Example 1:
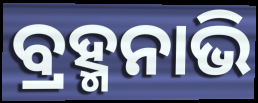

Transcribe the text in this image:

ବ୍ରହ୍ମନାଭି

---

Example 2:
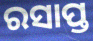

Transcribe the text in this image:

ରସାପ୍ତ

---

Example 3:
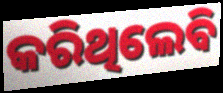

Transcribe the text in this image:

କରିଥିଲେବି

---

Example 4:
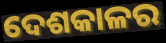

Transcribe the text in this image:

ଦେଶକାଳର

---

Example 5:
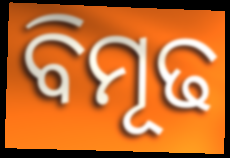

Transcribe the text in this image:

ବିମୂଢ